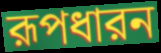
রূপধারন